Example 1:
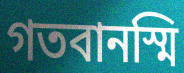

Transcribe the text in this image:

গতবানস্মি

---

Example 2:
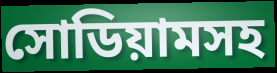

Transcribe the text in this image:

সোডিয়ামসহ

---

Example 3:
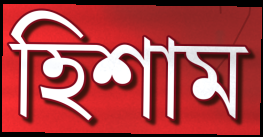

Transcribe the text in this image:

হিশাম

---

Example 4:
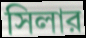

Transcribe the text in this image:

সিলার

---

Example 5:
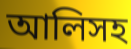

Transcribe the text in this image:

আলিসহ